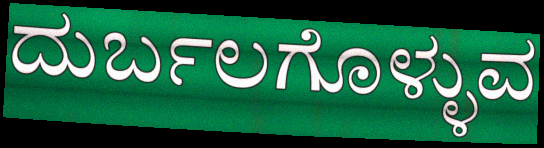
ದುರ್ಬಲಗೊಳ್ಳುವ